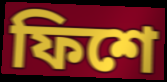
ফিশে